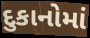
દુકાનોમાં